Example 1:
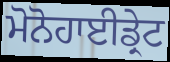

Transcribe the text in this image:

ਮੋਨੋਹਾਈਡ੍ਰੇਟ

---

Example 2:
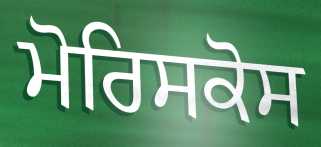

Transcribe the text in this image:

ਮੋਰਿਸਕੋਸ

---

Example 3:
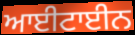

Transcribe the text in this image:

ਆਈਟਾਈਨ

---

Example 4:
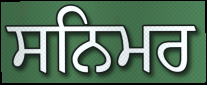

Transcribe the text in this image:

ਸਨਿਮਰ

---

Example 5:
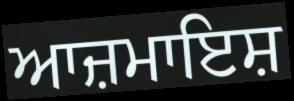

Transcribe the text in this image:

ਆਜ਼ਮਾਇਸ਼